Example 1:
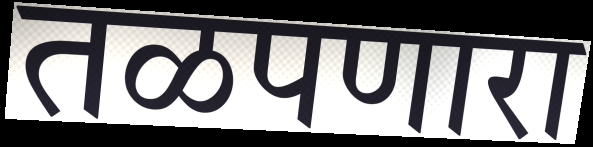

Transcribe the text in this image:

तळपणारा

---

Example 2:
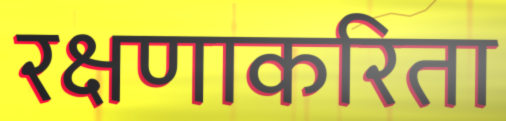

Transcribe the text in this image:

रक्षणाकरिता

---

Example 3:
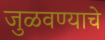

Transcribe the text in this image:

जुळवण्याचे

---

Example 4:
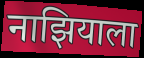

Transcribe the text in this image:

नाझियाला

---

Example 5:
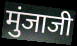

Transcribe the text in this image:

मुंजाजी